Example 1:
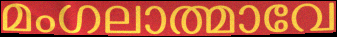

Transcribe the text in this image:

മംഗലാത്മാവേ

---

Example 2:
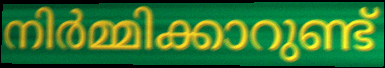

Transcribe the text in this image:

നിർമ്മിക്കാറുണ്ട്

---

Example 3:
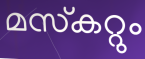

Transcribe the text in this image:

മസ്‌കറ്റും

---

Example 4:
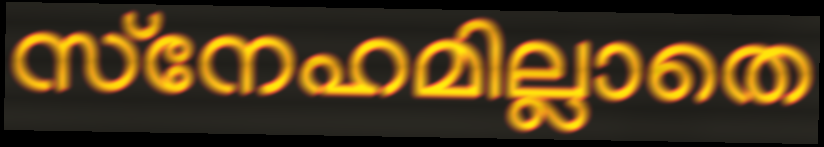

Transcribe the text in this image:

സ്‌നേഹമില്ലാതെ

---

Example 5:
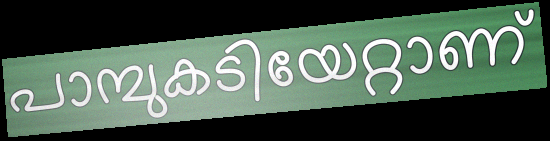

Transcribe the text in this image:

പാമ്പുകടിയേറ്റാണ്